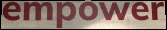
empower